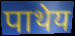
पाथेय